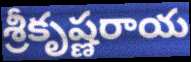
శ్రీకృష్ణరాయ